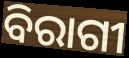
ବିରାଗୀ